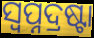
ସ୍ୱପ୍ନଦ୍ରଷ୍ଟା